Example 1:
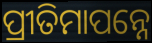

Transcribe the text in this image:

ପ୍ରୀତିମାପନ୍ନେ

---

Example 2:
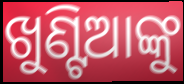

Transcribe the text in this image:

ଖୁଣ୍ଟିଆଙ୍କୁ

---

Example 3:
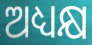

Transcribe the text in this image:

ଅଧ୍ୟକ୍ଷ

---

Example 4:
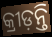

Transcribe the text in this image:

କ୍ରୀଡ଼ନ୍ତି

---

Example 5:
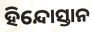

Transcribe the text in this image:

ହିନ୍ଦୋସ୍ତାନ